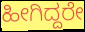
ಹೀಗಿದ್ದರೇ